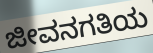
ಜೀವನಗತಿಯ